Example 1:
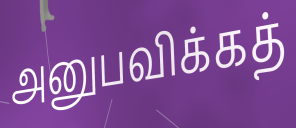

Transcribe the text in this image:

அனுபவிக்கத்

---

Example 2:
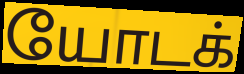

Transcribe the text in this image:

யோடக்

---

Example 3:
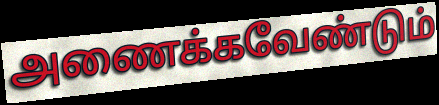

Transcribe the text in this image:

அணைக்கவேண்டும்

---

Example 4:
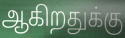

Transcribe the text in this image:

ஆகிறதுக்கு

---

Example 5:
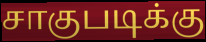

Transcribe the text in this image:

சாகுபடிக்கு